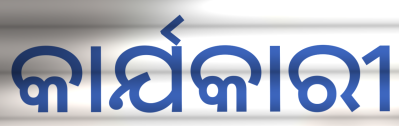
କାର୍ଯକାରୀ